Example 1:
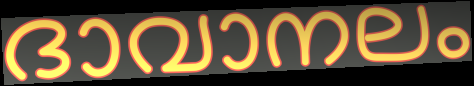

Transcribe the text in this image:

ദാവാനലം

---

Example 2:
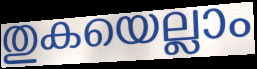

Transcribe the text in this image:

തുകയെല്ലാം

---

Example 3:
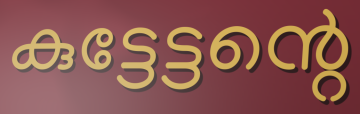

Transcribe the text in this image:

കുട്ടേട്ടന്റെ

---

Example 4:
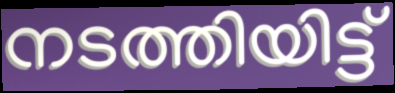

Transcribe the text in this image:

നടത്തിയിട്ട്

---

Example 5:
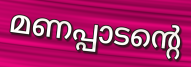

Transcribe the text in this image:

മണപ്പാടന്റെ